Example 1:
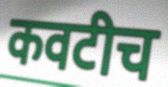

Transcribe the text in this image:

कवटीच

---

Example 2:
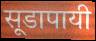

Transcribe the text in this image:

सूडापायी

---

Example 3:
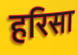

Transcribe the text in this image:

हरिसा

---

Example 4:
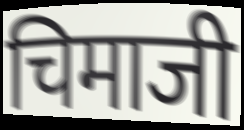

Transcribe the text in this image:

चिमाजी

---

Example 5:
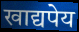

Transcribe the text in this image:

खाद्यपेय